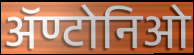
ॲण्टोनिओ